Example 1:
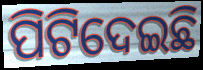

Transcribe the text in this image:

ପିଟିଦେଇଛି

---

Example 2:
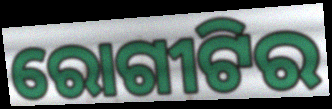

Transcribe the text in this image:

ରୋଗୀଟିର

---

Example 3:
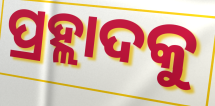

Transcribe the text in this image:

ପ୍ରହ୍ଲାଦକୁ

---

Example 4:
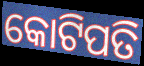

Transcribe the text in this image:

କୋଟିପତି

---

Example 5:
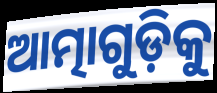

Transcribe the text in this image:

ଆତ୍ମାଗୁଡ଼ିକୁ